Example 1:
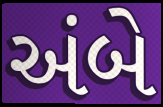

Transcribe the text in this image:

અંબે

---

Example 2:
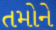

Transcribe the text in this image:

તમોને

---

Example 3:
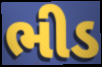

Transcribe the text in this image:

ભીડ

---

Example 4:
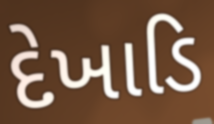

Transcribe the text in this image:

દેખાડિ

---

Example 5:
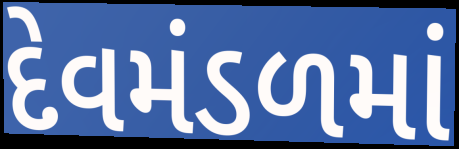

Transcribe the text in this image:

દેવમંડળમાં